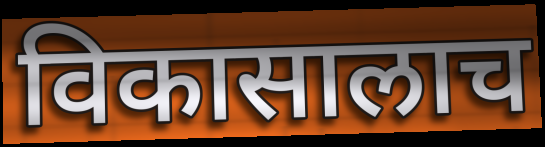
विकासालाच